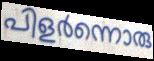
പിളർന്നൊരു